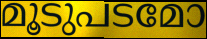
മൂടുപടമോ